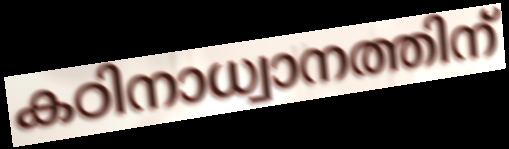
കഠിനാധ്വാനത്തിന്